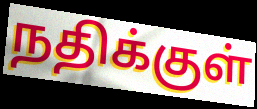
நதிக்குள்